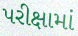
પરીક્ષામાં